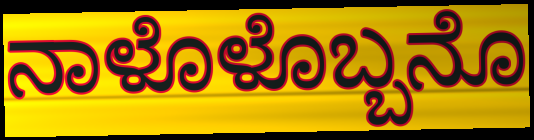
ನಾಳೊಳೊಬ್ಬನೊ